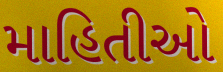
માહિતીઓ